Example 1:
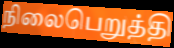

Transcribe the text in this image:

நிலைபெறுத்தி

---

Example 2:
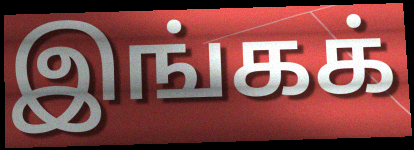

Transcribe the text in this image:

இங்கக்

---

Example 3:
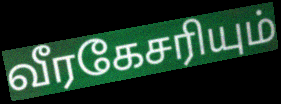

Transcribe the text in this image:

வீரகேசரியும்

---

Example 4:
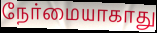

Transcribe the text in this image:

நேர்மையாகாது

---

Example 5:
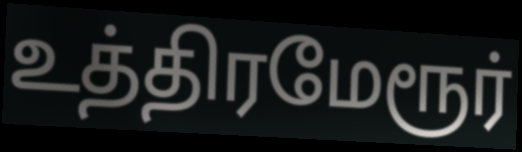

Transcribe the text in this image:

உத்திரமேரூர்